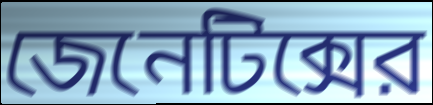
জেনেটিক্সের